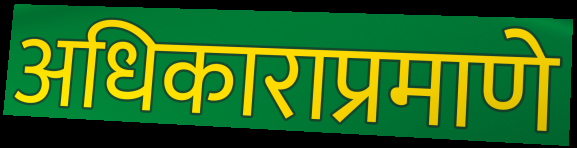
अधिकाराप्रमाणे